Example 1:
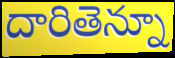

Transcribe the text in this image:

దారితెన్నూ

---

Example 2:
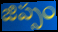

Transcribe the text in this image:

జిప్సం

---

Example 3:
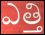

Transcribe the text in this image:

ఎత్తి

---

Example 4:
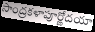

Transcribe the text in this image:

సాంద్రకళాపూర్ణోదయా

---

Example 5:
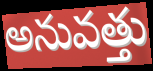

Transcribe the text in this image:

అనువత్తు